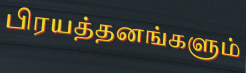
பிரயத்தனங்களும்